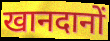
खानदानों